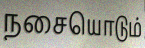
நசையொடும்